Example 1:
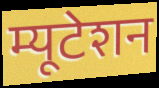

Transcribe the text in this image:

म्यूटेशन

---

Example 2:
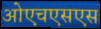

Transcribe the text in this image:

ओएचएसएस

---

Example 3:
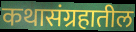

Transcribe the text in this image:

कथासंग्रहातील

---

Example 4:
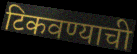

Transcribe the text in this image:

टिकवण्याची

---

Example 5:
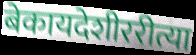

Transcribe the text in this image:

बेकायदेशीररीत्या